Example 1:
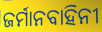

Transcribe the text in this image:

ଜର୍ମାନବାହିନୀ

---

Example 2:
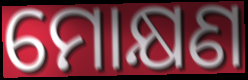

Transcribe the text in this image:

ମୋକ୍ଷଣ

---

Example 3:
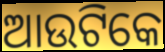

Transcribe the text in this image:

ଆଉଟିକେ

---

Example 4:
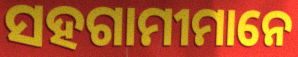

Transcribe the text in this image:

ସହଗାମୀମାନେ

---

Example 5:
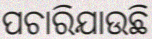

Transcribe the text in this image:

ପଚାରିଯାଉଛି